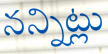
నన్నిట్లు